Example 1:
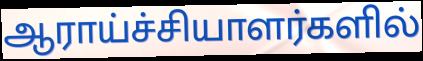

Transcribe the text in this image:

ஆராய்ச்சியாளர்களில்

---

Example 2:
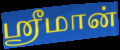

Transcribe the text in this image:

ஸ்ரீமான்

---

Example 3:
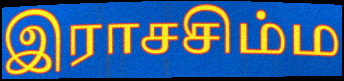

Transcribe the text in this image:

இராசசிம்ம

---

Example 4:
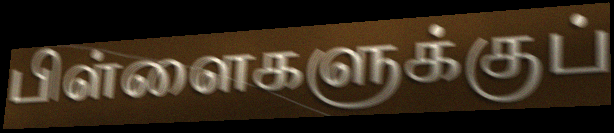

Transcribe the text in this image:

பிள்ளைகளுக்குப்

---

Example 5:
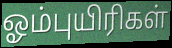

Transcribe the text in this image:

ஓம்புயிரிகள்